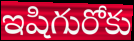
ఇషిగురోకు